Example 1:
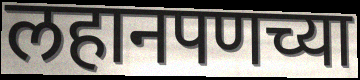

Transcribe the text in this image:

लहानपणच्या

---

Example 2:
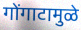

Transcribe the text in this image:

गोंगाटामुळे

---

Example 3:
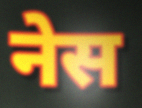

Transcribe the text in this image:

नेस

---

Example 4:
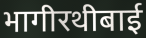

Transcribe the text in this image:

भागीरथीबाई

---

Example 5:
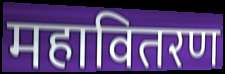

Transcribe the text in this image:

महावितरण